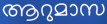
ആറുമാസ